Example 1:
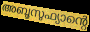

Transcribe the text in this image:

അബൂസുഫ്യാന്റെ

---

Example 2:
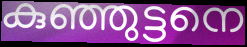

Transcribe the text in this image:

കുഞ്ഞുട്ടനെ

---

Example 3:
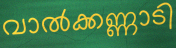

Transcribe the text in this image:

വാൽക്കണ്ണാടി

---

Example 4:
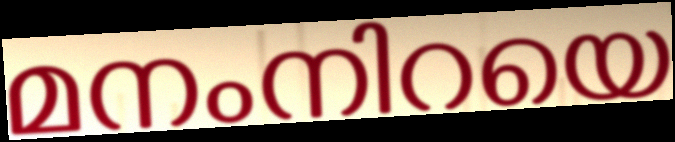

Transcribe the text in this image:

മനംനിറയെ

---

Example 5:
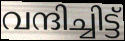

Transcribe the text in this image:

വന്ദിച്ചിട്ട്